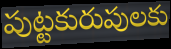
పుట్టకురుపులకు